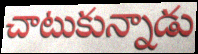
చాటుకున్నాడు